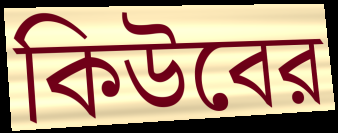
কিউবের